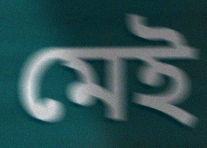
মেই